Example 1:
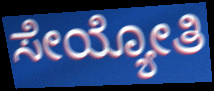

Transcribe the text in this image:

ಸೇಯ್ಯೋತಿ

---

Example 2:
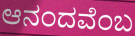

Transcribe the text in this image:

ಆನಂದವೆಂಬ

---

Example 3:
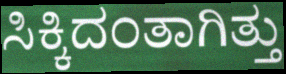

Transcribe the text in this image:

ಸಿಕ್ಕಿದಂತಾಗಿತ್ತು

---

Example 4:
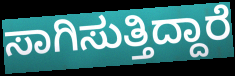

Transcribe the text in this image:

ಸಾಗಿಸುತ್ತಿದ್ದಾರೆ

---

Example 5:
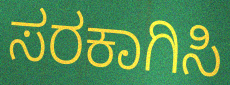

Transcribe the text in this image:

ಸರಕಾಗಿಸಿ